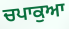
ਚਪਾਕੁਆ